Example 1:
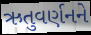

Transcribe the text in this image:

ઋતુવર્ણનને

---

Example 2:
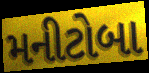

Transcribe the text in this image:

મનીટોબા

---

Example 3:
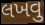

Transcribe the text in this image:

લખવુ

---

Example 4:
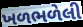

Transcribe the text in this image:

ખળભળેલી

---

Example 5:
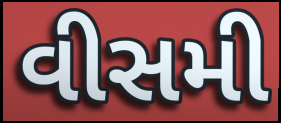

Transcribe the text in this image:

વીસમી